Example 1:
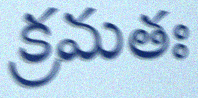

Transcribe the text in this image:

క్రమతః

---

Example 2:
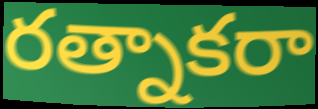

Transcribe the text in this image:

రత్నాకరా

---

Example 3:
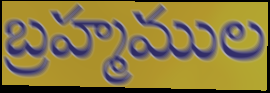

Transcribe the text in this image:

బ్రహ్మముల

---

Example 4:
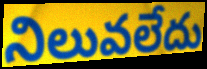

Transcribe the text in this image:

నిలువలేదు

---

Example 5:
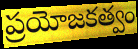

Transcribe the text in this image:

ప్రయోజకత్వం